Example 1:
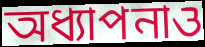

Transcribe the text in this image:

অধ্যাপনাও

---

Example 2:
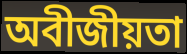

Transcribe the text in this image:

অবীজীয়তা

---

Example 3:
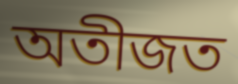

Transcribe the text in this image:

অতীজত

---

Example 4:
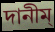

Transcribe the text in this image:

দানীম্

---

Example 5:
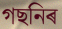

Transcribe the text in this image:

গছনিৰ